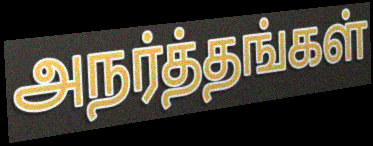
அநர்த்தங்கள்